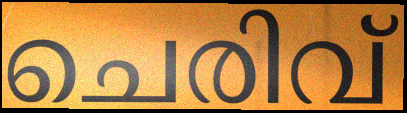
ചെരിവ്